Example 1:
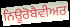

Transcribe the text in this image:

ਨਿਊਰੋਬੈਵੀਅਰ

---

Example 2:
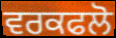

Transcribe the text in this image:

ਵਰਕਫਲੋ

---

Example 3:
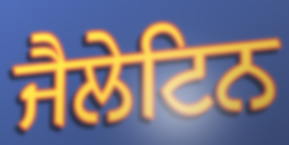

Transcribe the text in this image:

ਜੈਲੇਟਿਨ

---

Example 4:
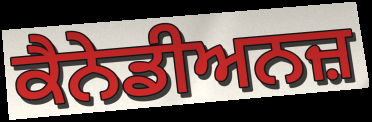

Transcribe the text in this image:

ਕੈਨੇਡੀਅਨਜ਼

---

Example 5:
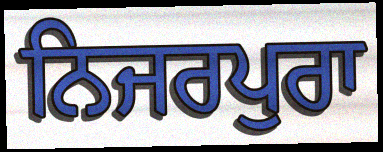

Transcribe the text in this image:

ਨਿਜਰਪੁਰਾ